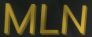
MLN